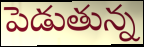
పెడుతున్న